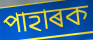
পাহাৰক